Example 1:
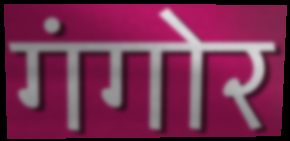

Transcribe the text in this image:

गंगोर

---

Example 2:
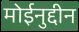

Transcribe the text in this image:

मोईनुद्दीन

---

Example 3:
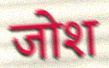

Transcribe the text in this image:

जोश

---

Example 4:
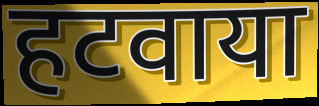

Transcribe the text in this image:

हटवाया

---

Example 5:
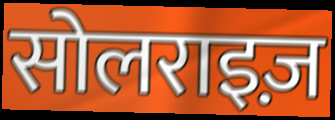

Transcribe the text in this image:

सोलराइज़